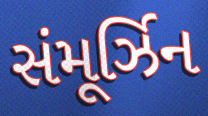
સંમૂર્ઝિન